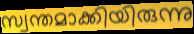
സ്വന്തമാക്കിയിരുന്നു